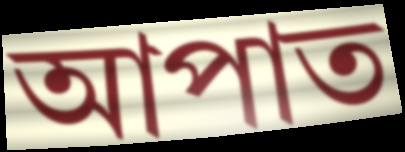
আপাত